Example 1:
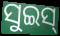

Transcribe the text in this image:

ସୁଇସ୍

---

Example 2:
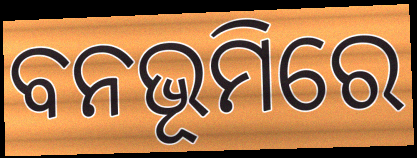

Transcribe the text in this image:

ବନଭୂମିରେ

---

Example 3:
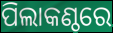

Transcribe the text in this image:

ପିଲାକଣ୍ଠରେ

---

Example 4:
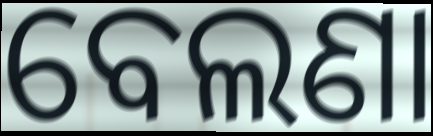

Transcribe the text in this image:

ବେଲଣା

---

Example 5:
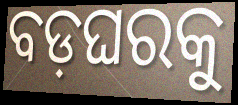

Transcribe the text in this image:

ବଡ଼ଘରକୁ